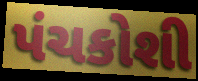
પંચકોશી